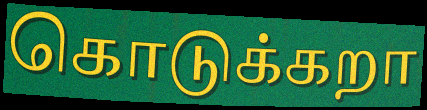
கொடுக்கறா